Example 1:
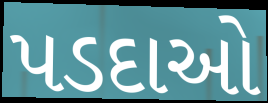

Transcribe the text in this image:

પડદાઓ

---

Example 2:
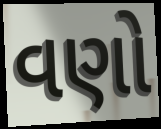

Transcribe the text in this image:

વણો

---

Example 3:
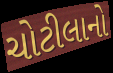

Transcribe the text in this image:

ચોટીલાનો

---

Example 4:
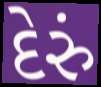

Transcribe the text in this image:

દેરું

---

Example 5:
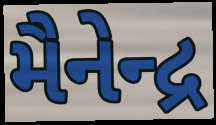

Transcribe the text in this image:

મૈનેન્દ્ર